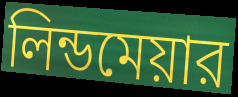
লিন্ডমেয়ার